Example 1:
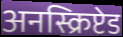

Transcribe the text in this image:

अनस्क्रिप्टेड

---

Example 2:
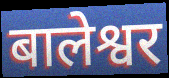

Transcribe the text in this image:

बालेश्वर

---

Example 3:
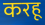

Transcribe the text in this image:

करहू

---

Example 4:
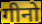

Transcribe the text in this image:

गीनो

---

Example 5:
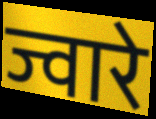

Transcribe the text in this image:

ज्वारे